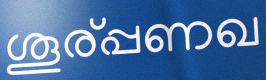
ശൂര്പ്പണഖ